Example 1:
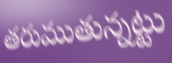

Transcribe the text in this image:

తరుముతున్నట్టు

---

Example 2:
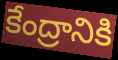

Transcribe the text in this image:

కేంద్రానికి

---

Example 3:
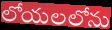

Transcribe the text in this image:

లోయలలోను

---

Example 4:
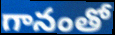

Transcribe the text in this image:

గానంతో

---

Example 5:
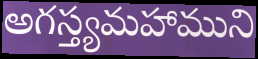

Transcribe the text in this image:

అగస్త్యమహాముని